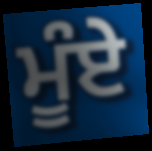
ਮੂੰਏ